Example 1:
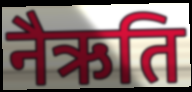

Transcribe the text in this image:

नैऋति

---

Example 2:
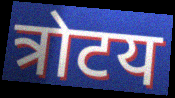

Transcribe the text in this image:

त्रोटय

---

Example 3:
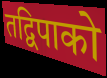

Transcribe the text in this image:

तद्विपाको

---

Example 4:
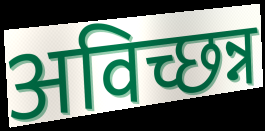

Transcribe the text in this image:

अविच्छन्न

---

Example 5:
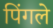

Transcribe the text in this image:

पिंगले